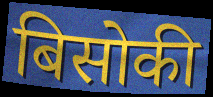
बिसोकी